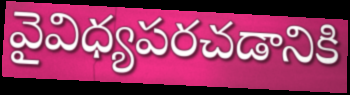
వైవిధ్యపరచడానికి